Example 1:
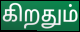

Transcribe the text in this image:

கிறதும்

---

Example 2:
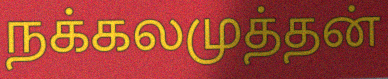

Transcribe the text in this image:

நக்கலமுத்தன்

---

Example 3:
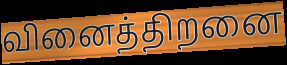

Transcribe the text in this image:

வினைத்திறனை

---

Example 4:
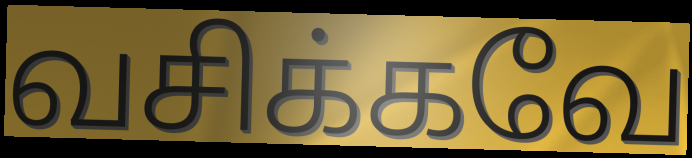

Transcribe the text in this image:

வசிக்கவே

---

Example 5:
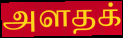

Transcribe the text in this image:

அளதக்